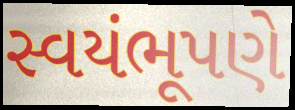
સ્વયંભૂપણે